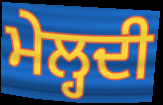
ਮੇਲ੍ਹਦੀ